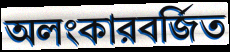
অলংকারবর্জিত